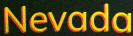
Nevada